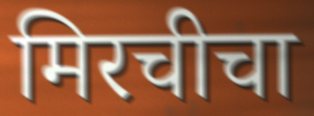
मिरचीचा